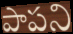
పాపని